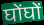
घोंघों